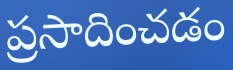
ప్రసాదించడం